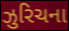
ઝુરિચના